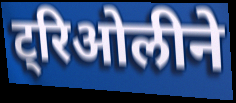
ट्रिओलीने